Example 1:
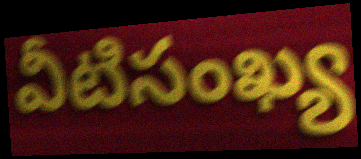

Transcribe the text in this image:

వీటిసంఖ్య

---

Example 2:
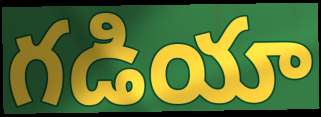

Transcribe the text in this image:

గడియా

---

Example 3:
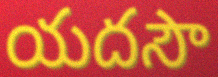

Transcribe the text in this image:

యదసౌ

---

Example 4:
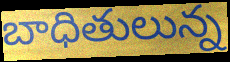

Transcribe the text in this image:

బాధితులున్న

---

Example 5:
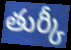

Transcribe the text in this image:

తుర్కీ